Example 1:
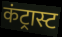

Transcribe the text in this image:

कंट्रास्ट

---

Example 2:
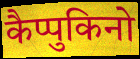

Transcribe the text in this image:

कैप्पुकिनो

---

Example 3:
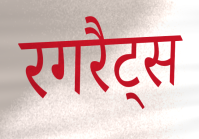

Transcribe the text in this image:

रगरैट्स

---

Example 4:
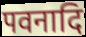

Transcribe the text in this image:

पवनादि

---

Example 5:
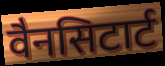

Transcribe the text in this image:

वैनसिटार्ट